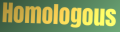
Homologous